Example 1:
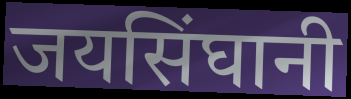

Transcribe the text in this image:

जयसिंघानी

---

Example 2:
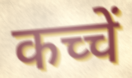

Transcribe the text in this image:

कच्चें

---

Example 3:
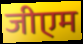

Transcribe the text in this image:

जीएम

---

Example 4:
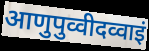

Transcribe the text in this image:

आणुपुव्वीदव्वाइं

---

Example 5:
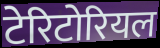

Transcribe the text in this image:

टेरिटोरियल